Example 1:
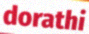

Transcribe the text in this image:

dorathi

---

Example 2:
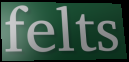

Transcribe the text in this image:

felts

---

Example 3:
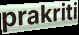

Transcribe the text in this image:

prakriti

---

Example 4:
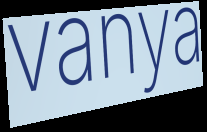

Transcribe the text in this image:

vanya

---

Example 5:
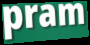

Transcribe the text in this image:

pram